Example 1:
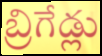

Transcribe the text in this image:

బ్రిగేడ్లు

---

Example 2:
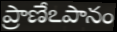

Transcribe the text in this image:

ప్రాణేఽపానం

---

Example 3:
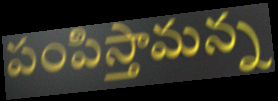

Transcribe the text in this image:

పంపిస్తామన్న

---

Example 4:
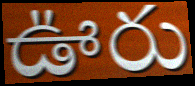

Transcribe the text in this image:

ఊరు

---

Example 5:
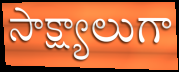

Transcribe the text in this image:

సాక్ష్యాలుగా